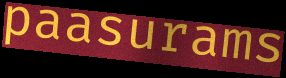
paasurams